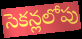
సెకన్లలోపు